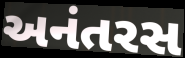
અનંતરસ